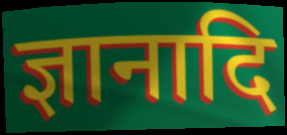
ज्ञानादि